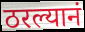
ठरल्यानं